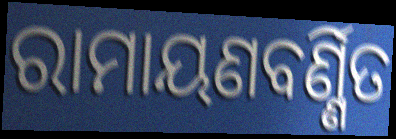
ରାମାୟଣବର୍ଣ୍ଣିତ